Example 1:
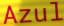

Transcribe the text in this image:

Azul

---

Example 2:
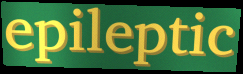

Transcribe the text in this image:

epileptic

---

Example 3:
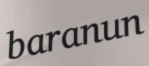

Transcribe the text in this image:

baranun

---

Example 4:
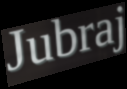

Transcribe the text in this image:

Jubraj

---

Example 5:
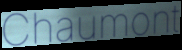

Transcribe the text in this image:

Chaumont